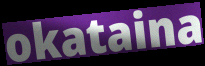
okataina